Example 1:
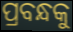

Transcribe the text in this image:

ପ୍ରବନ୍ଧକୁ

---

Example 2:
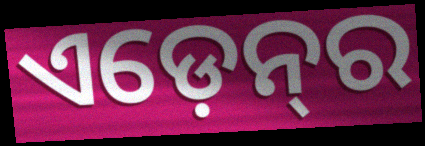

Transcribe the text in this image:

ଏଡ଼େନ୍‍ର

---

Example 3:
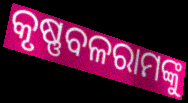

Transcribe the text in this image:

କୃଷ୍ଣବଳରାମଙ୍କୁ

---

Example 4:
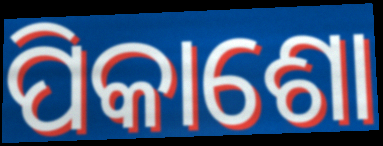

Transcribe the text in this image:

ପିକାଶୋ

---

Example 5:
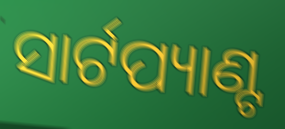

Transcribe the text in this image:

ସାର୍ଟପ୍ୟାଣ୍ଟ